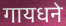
गायधने